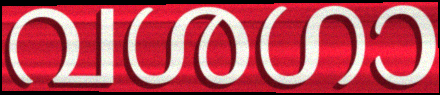
വശഗാ